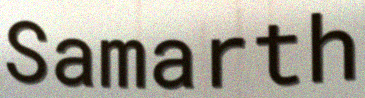
Samarth